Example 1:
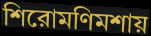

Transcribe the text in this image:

শিরোমণিমশায়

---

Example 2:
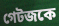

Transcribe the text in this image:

গেটজকে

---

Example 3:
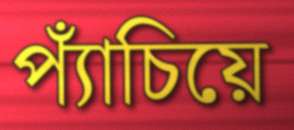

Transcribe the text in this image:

প্যাঁচিয়ে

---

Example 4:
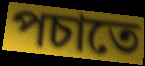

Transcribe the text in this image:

পচাতে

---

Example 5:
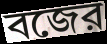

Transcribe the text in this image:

বজের